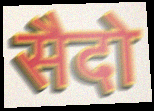
सैदो